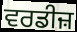
ਵਰਡੀਜ਼